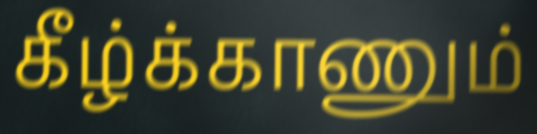
கீழ்க்காணும்